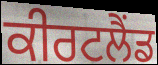
ਕੀਰਟਲੈਂਡ